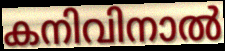
കനിവിനാൽ